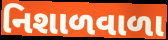
નિશાળવાળા